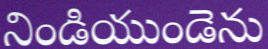
నిండియుండెను